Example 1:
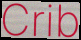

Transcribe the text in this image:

Crib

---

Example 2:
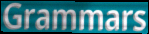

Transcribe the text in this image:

Grammars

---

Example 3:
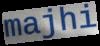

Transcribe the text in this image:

majhi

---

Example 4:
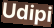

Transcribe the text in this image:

Udipi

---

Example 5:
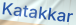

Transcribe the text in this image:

Katakkar